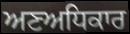
ਅਣਅਧਿਕਾਰ